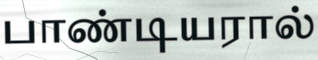
பாண்டியரால்